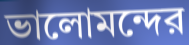
ভালোমন্দের